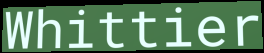
Whittier